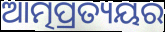
ଆତ୍ମପ୍ରତ୍ୟୟର